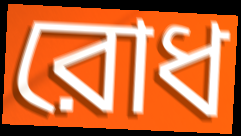
রোধ